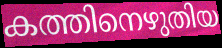
കത്തിനെഴുതിയ